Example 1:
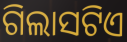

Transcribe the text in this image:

ଗିଲାସଟିଏ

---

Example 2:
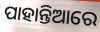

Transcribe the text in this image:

ପାହାନ୍ତିଆରେ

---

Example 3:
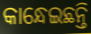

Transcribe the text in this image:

କାନ୍ଧେଇଛନ୍ତି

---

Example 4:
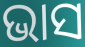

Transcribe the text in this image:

ଭାସ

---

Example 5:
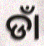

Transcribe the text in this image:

ଡାଁ